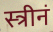
स्त्रीनं